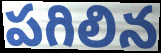
పగిలిన